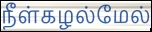
நீள்கழல்மேல்